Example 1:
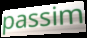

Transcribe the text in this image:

passim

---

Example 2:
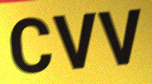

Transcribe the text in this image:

CVV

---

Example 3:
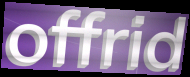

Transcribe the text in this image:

offrid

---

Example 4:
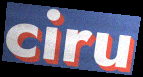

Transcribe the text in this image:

ciru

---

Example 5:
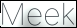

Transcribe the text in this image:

Meek